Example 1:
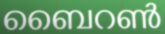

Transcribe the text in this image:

ബൈറൺ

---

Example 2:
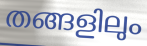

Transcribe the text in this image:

തങ്ങളിലും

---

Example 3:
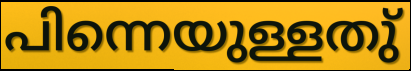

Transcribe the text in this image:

പിന്നെയുള്ളതു്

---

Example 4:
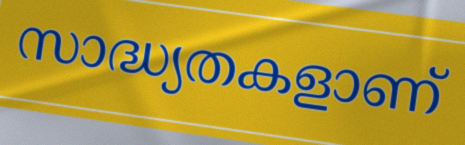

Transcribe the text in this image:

സാദ്ധ്യതകളാണ്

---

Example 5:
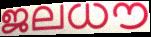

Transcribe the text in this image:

ജലധൗ